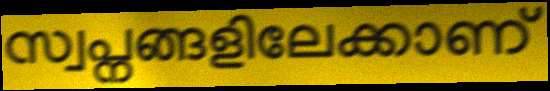
സ്വപ്നങ്ങളിലേക്കാണ്